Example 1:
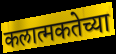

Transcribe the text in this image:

कलात्मकतेच्या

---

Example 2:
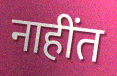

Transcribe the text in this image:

नाहींत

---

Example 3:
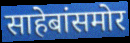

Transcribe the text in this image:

साहेबांसमोर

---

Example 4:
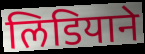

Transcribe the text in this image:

लिडियाने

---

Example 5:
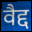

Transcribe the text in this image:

वैद्द